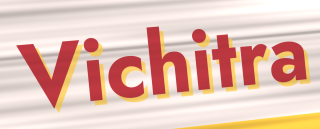
Vichitra